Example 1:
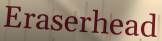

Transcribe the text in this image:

Eraserhead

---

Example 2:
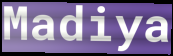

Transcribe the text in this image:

Madiya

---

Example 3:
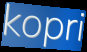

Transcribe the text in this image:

kopri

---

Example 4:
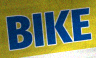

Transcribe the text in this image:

BIKE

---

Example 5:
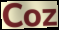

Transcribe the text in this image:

Coz